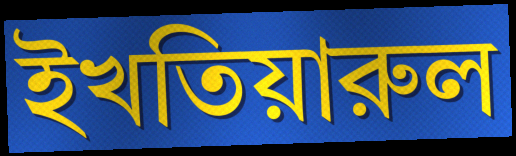
ইখতিয়ারুল